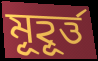
মূহূর্ত্ত